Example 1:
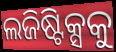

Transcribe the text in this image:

ଲଜିଷ୍ଟିକ୍ସକୁ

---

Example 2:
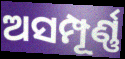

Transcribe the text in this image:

ଅସମ୍ପୂର୍ଣ୍ଣ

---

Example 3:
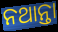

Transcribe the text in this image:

ନଥାନ୍ତା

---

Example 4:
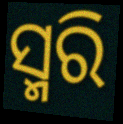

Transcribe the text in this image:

ସ୍ମରି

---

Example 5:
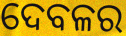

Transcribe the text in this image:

ଦେବଳର